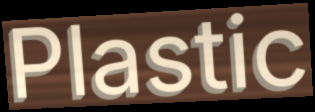
Plastic